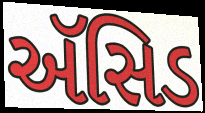
ઍસિડ